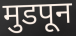
मुडपून